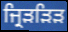
ਜ੍ਰਿੜੜਿੜ